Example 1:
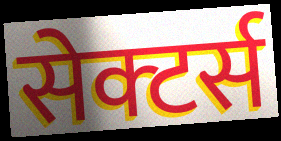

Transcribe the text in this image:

सेक्‍टर्स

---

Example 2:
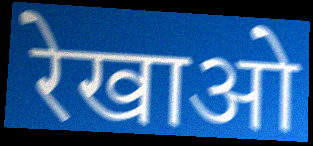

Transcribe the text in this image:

रेखाओ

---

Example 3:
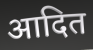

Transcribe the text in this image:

आदित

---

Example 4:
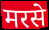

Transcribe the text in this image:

मरसे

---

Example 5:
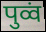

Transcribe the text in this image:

पुव्वं